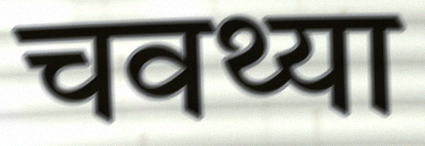
चवथ्या